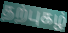
தற்புகழ்